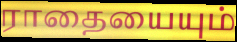
ராதையையும்